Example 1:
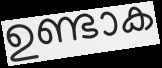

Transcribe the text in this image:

ഉണ്ടാക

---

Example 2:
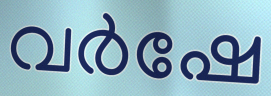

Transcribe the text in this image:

വർഷേ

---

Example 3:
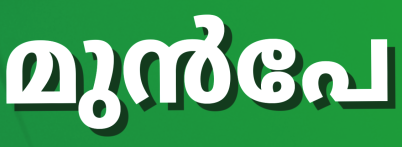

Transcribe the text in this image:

മുൻപേ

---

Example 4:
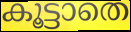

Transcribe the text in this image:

കൂട്ടാതെ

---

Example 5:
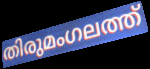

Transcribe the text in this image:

തിരുമംഗലത്ത്